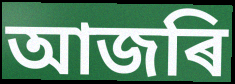
আজৰি